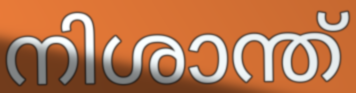
നിശാന്ത്